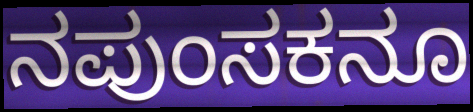
ನಪುಂಸಕನೂ